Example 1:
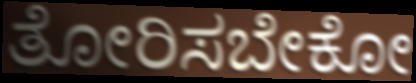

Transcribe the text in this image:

ತೋರಿಸಬೇಕೋ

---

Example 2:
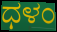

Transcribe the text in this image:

ಧಳಂ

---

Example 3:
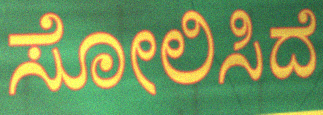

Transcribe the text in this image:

ಸೋಲಿಸಿದೆ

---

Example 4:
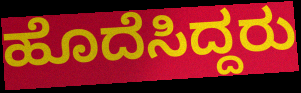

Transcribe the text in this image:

ಹೊದೆಸಿದ್ದರು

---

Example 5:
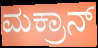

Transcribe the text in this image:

ಮಕ್ರಾನ್